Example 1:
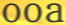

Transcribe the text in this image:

ooa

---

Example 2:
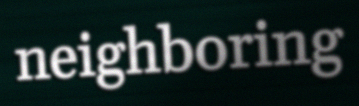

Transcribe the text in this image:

neighboring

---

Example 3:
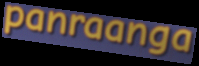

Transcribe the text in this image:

panraanga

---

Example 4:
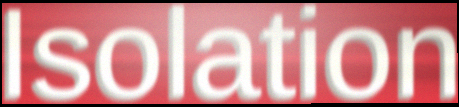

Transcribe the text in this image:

Isolation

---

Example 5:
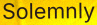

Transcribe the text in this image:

Solemnly